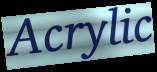
Acrylic